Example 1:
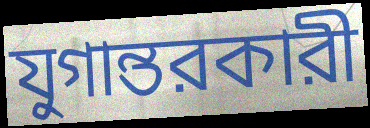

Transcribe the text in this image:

যুগান্তরকারী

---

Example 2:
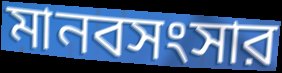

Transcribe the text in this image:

মানবসংসার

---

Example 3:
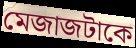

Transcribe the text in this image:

মেজাজটাকে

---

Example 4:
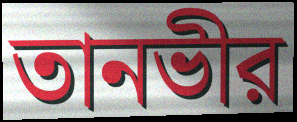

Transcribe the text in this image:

তানভীর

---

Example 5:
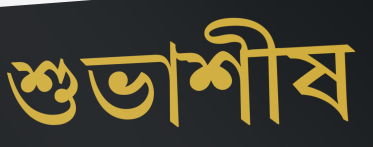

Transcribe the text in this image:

শুভাশীষ